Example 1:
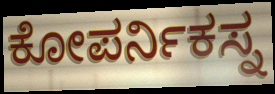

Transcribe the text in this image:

ಕೋಪರ್ನಿಕಸ್ನ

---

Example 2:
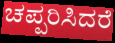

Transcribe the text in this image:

ಚಪ್ಪರಿಸಿದರೆ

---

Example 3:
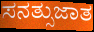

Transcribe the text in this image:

ಸನತ್ಸುಜಾತ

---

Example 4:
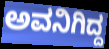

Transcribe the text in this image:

ಅವನಿಗಿದ್ದ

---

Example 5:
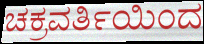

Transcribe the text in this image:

ಚಕ್ರವರ್ತಿಯಿಂದ